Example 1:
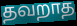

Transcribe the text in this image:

தவறாத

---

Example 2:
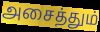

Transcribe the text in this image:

அசைத்தும்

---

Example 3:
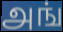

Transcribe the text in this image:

அங்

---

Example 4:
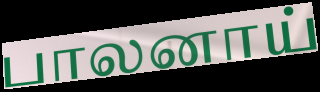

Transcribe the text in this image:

பாலனாய்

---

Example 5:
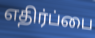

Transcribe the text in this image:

எதிர்ப்பை